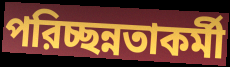
পরিচ্ছন্নতাকর্মী